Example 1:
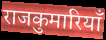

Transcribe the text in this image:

राजकुमारियाँ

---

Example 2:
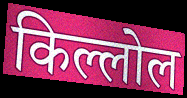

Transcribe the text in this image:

किल्लोल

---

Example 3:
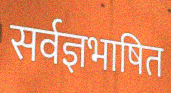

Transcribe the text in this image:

सर्वज्ञभाषित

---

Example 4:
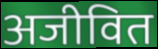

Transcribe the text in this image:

अजीवित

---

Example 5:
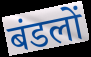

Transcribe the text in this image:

बंडलों